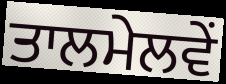
ਤਾਲਮੇਲਵੇਂ